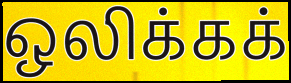
ஒலிக்கக்